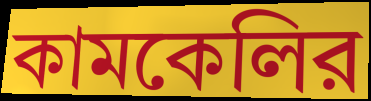
কামকেলির